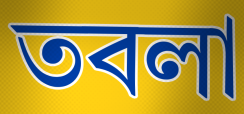
তবলা